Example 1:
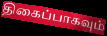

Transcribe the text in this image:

திகைப்பாகவும்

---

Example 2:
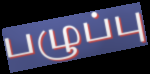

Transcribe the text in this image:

பழுப்பு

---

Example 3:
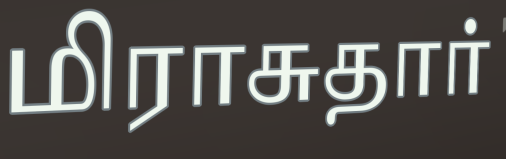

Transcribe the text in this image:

மிராசுதார்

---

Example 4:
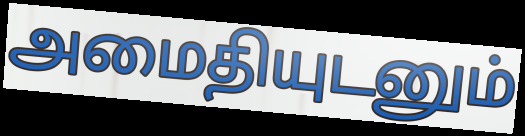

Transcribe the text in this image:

அமைதியுடனும்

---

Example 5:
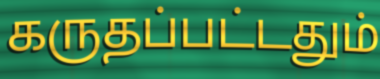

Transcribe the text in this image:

கருதப்பட்டதும்